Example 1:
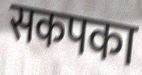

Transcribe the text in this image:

सकपका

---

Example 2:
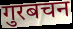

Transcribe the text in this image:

गुरबचन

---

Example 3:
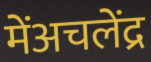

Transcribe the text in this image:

मेंअचलेंद्र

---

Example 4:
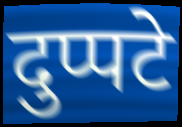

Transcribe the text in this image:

दुप्पटे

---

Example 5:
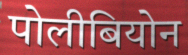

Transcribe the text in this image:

पोलीबियोन